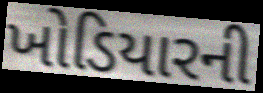
ખોડિયારની